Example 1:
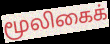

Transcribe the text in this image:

மூலிகைக்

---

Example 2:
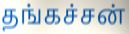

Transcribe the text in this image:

தங்கச்சன்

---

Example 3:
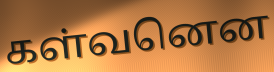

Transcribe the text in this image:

கள்வனென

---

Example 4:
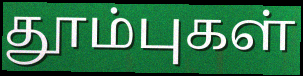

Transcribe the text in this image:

தூம்புகள்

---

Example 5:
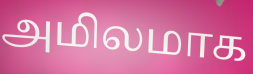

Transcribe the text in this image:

அமிலமாக